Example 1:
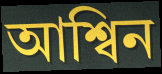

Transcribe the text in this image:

আশ্বিন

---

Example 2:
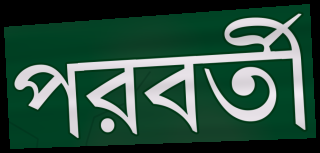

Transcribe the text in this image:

পরবর্তী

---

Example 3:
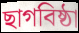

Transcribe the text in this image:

ছাগবিষ্ঠা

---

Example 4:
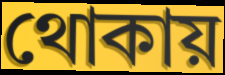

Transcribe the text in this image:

থোকায়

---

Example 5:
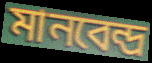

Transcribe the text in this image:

মানবেন্দ্র